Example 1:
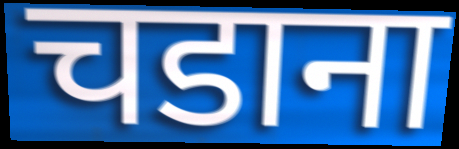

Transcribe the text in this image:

चडाना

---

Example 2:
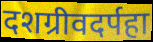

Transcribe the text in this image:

दशग्रीवदर्पहा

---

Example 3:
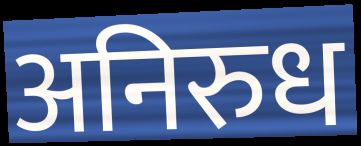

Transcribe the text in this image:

अनिरुध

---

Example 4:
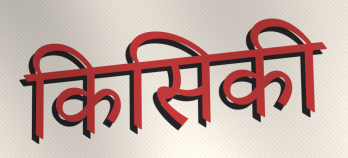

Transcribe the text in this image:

किसिकी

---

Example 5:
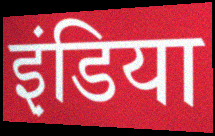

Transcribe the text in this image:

इ़ंडिया